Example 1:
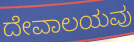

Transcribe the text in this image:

ದೇವಾಲಯವು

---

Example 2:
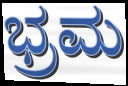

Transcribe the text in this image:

ಭ್ರಮ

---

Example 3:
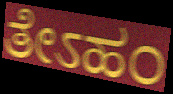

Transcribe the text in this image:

ತೇಽಹಂ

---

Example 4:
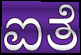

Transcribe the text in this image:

ಐತೆ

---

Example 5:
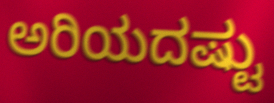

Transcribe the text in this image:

ಅರಿಯದಷ್ಟು